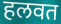
हलवत